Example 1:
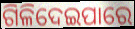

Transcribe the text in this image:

ଗିଳିଦେଇପାରେ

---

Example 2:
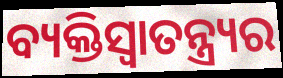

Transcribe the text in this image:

ବ୍ୟକ୍ତିସ୍ୱାତନ୍ତ୍ର୍ୟର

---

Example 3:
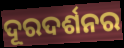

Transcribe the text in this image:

ଦୂରଦର୍ଶନର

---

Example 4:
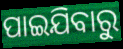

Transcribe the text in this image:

ପାଇଯିବାରୁ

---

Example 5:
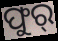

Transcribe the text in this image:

ଫୁର୍